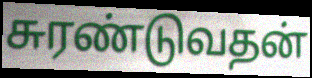
சுரண்டுவதன்